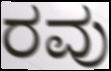
ರವು